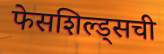
फेसशिल्ड्सची